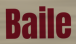
Baile